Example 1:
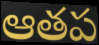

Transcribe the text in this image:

ఆతప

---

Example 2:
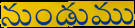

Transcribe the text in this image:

నుండుము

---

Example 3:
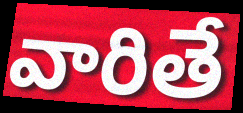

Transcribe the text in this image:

వారితే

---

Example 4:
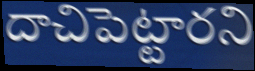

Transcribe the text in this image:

దాచిపెట్టారని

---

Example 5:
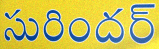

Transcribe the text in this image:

సురిందర్